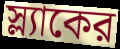
স্ল্যাকের